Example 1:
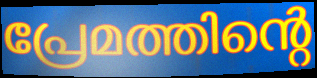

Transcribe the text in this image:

പ്രേമത്തിന്റെ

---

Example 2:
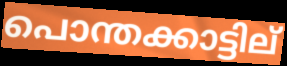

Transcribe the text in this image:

പൊന്തക്കാട്ടില്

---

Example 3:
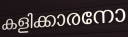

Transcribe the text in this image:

കളിക്കാരനോ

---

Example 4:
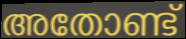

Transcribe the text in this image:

അതോണ്ട്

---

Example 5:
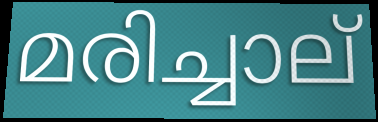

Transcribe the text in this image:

മരിച്ചാല്